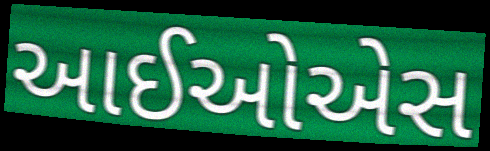
આઈઓએસ